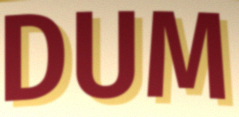
DUM